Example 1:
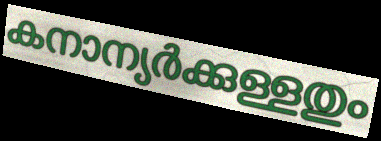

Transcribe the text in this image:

കനാന്യർക്കുള്ളതും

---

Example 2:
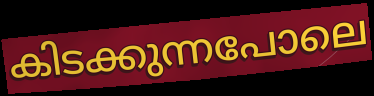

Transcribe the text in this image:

കിടക്കുന്നപോലെ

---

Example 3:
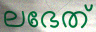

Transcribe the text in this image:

ലഭേത്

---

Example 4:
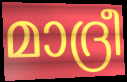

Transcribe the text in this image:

മാദ്രീ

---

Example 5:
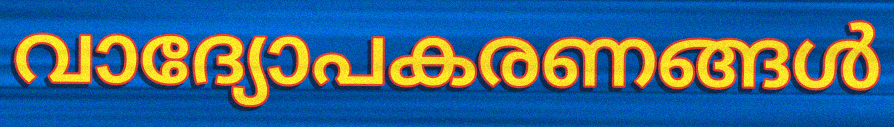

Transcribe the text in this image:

വാദ്യോപകരണങ്ങൾ